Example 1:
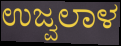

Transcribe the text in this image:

ಉಜ್ವಲಾಳ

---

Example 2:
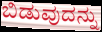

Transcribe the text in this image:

ಬಿಡುವುದನ್ನು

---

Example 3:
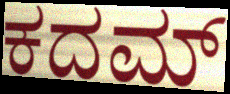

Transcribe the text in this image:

ಕದಮ್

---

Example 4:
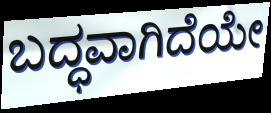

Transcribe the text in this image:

ಬದ್ಧವಾಗಿದೆಯೇ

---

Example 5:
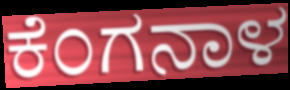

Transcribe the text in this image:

ಕೆಂಗನಾಳ